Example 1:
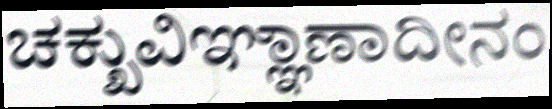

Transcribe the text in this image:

ಚಕ್ಖುವಿಞ್ಞಾಣಾದೀನಂ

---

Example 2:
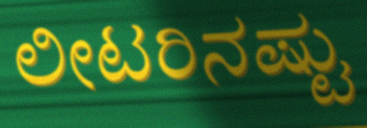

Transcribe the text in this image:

ಲೀಟರಿನಷ್ಟು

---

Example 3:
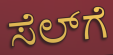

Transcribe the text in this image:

ಸೆಲ್‍ಗೆ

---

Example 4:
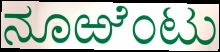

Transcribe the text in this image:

ನೂಱೆಂಟು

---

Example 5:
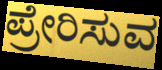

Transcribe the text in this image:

ಪ್ರೇರಿಸುವ